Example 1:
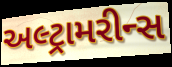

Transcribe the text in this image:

અલ્ટ્રામરીન્સ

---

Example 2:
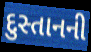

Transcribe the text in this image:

દુસ્તાનની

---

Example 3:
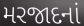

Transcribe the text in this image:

મરજાદનાં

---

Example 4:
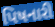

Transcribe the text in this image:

પિષનારી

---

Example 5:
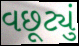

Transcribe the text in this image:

વછૂટ્યું